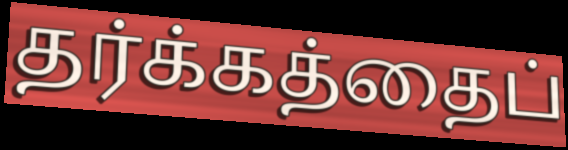
தர்க்கத்தைப்